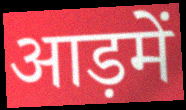
आड़में